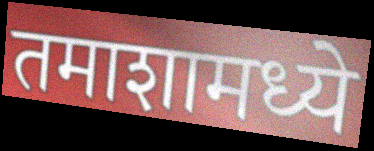
तमाशामध्ये